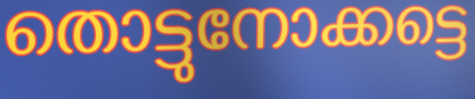
തൊട്ടുനോക്കട്ടെ